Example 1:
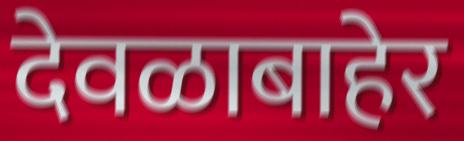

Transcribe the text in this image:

देवळाबाहेर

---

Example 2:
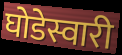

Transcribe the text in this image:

घोडेस्वारी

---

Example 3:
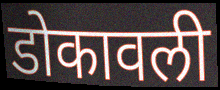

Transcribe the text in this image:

डोकावली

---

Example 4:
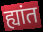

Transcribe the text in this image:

ह्यांत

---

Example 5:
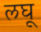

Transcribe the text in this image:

लघू